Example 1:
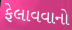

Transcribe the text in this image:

ફેલાવવાનો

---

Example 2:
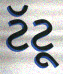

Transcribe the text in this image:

ટૅટૂ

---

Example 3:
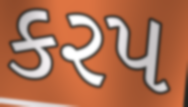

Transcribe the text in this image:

કરપ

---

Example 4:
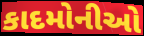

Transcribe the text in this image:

કાદમોનીઓ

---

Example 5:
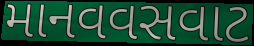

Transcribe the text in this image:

માનવવસવાટ